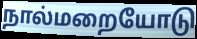
நால்மறையோடு